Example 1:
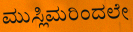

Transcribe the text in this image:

ಮುಸ್ಲಿಮರಿಂದಲೇ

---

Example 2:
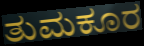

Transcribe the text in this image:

ತುಮಕೂರ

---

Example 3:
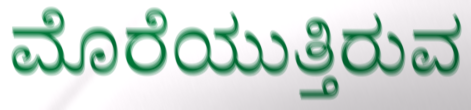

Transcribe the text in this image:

ಮೊರೆಯುತ್ತಿರುವ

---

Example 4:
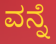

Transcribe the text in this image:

ವನ್ನೆ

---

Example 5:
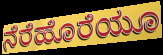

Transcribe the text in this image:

ನೆರೆಹೊರೆಯೂ